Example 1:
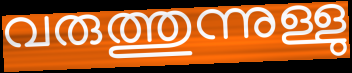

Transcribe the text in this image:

വരുത്തുന്നുള്ളു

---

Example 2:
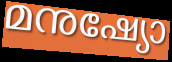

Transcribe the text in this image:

മനുഷ്യോ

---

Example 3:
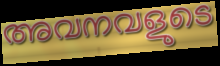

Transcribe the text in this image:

അവനവളുടെ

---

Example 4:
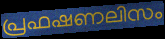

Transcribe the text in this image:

പ്രഫഷണലിസം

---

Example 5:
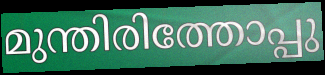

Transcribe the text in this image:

മുന്തിരിത്തോപ്പു